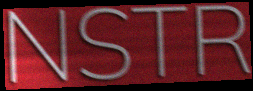
NSTR